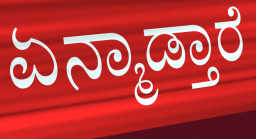
ಏನ್ಮಾಡ್ತಾರೆ